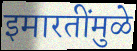
इमारतींमुळे